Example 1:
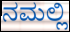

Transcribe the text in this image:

ನಮಲ್ಲಿ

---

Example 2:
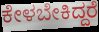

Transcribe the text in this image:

ಕೇಳಬೇಕಿದ್ದರೆ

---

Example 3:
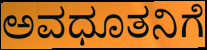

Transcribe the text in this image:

ಅವಧೂತನಿಗೆ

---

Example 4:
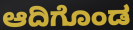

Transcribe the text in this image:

ಆದಿಗೊಂಡ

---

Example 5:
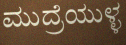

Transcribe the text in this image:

ಮುದ್ರೆಯುಳ್ಳ